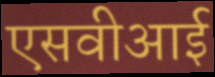
एसवीआई